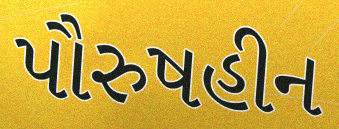
પૌરુષહીન